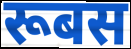
रूबस